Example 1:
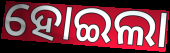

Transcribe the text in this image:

ହୋଇଲା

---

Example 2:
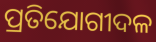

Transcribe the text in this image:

ପ୍ରତିଯୋଗୀଦଳ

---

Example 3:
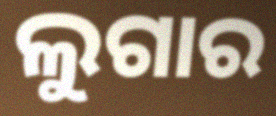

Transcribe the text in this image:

ଲୁଗାର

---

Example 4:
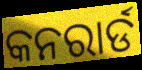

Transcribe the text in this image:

କନରାର୍ଡ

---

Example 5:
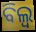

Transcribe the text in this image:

ବିଲ୍ଵ